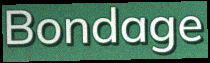
Bondage